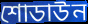
শোডাউন